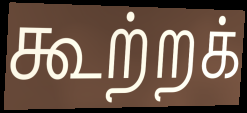
கூற்றக்